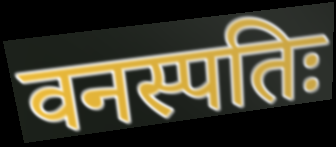
वनस्पतिः